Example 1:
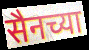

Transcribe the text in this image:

सैनच्या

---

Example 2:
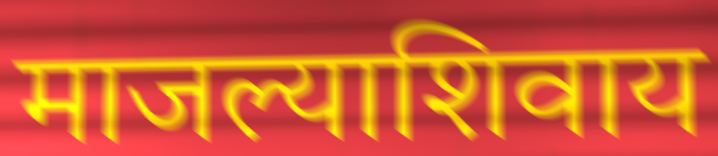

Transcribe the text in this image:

माजल्याशिवाय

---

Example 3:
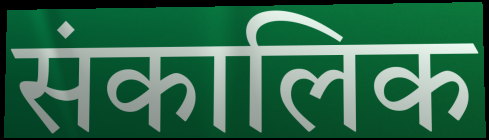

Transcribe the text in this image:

संकालिक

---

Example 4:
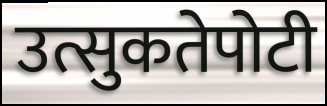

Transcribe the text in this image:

उत्सुकतेपोटी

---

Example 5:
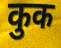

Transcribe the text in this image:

कुक